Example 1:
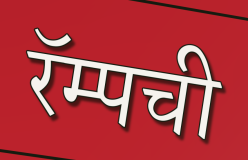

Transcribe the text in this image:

रॅम्पची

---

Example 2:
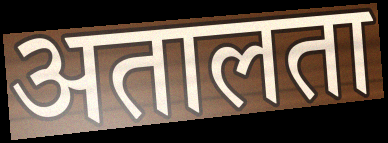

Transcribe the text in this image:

अतालता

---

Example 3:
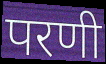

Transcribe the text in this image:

परणी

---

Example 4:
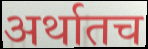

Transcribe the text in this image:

अर्थातच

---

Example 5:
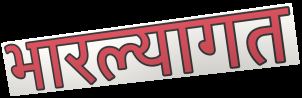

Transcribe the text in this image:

भारल्यागत